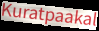
Kuratpaakal